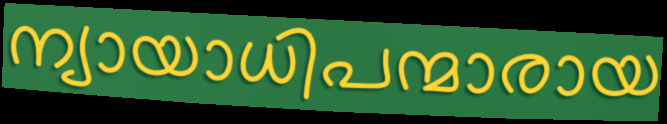
ന്യായാധിപന്മാരായ